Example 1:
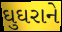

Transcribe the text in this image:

ઘુઘરાને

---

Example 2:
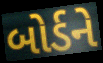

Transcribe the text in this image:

બોર્ડને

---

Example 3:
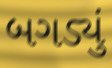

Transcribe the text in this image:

બગડ્યું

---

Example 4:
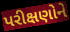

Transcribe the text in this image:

પરીક્ષણોને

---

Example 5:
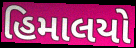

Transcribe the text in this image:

હિમાલયો